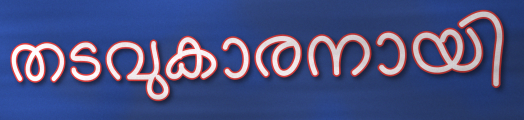
തടവുകാരനായി